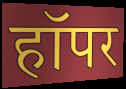
हॉपर